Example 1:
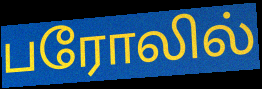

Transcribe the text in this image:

பரோலில்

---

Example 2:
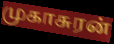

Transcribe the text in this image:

முகாசுரன்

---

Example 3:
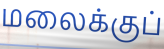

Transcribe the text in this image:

மலைக்குப்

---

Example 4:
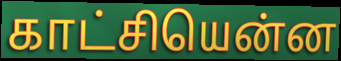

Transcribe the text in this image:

காட்சியென்ன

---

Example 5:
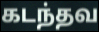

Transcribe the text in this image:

கடந்தவ